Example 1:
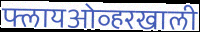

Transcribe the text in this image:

फ्लायओव्हरखाली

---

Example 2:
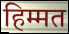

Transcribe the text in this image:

हिम्मत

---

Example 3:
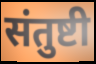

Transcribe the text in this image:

संतुष्टी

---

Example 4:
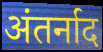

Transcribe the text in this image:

अंतर्नाद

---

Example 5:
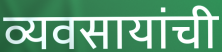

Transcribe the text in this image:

व्यवसायांची